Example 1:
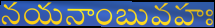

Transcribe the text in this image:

నయనాంబువహః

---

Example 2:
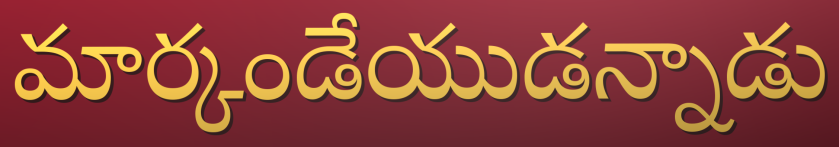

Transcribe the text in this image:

మార్కండేయుడన్నాడు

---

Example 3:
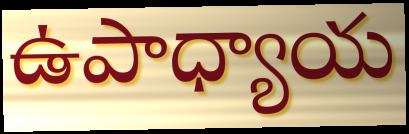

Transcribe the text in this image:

ఉపాధ్యాయ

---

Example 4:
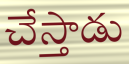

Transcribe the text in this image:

చేస్తాడు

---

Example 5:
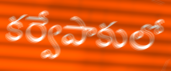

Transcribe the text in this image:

కర్వేపాకులో